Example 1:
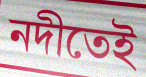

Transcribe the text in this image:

নদীতেই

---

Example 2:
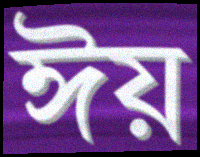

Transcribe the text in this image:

ঈয়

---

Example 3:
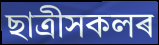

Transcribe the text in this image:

ছাত্ৰীসকলৰ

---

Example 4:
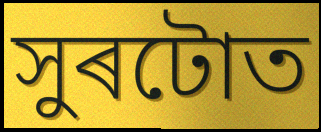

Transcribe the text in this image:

সুৰটোত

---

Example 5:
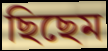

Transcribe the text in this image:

ছিছেম